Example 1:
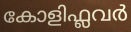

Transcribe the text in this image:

കോളിഫ്ലവർ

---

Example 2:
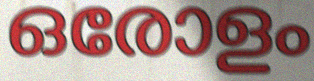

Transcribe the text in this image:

ഒരോളം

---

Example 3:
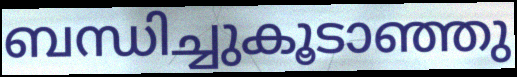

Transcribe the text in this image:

ബന്ധിച്ചുകൂടാഞ്ഞു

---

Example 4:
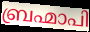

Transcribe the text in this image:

ബ്രഹ്മാപി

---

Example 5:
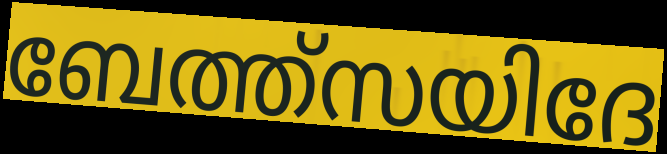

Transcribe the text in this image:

ബേത്ത്സയിദേ